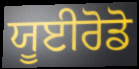
ਯੂਈਰੋਡੋ